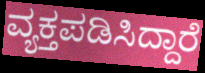
ವ್ಯಕ್ತಪಡಿಸಿದ್ದಾರೆ